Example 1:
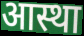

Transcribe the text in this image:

आस्था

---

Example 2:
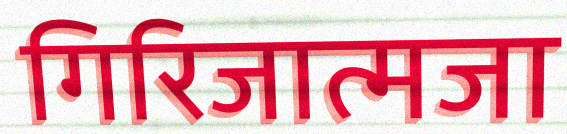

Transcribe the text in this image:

गिरिजात्मजा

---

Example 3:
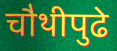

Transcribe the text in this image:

चौथीपुढे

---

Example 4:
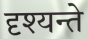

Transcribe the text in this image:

दृश्यन्ते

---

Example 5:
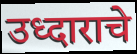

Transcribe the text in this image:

उध्दाराचे